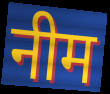
नीम